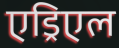
एड्रिएल